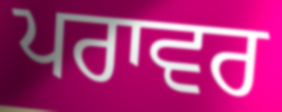
ਪਰਾਵਰ